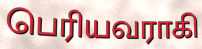
பெரியவராகி